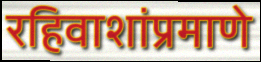
रहिवाशांप्रमाणे